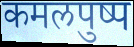
कमलपुष्प